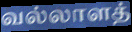
வல்லாளத்